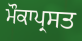
ਮੌਕਾਪ੍ਰਸਤ